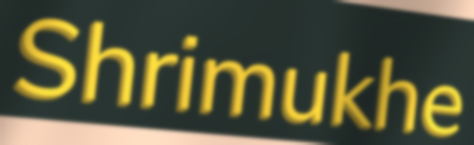
Shrimukhe